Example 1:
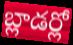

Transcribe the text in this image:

బ్లాడర్లో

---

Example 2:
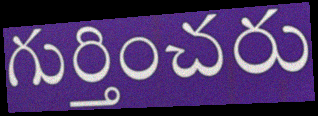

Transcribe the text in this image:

గుర్తించరు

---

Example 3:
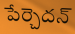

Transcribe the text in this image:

పేర్చెదన్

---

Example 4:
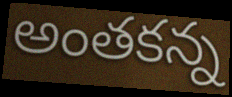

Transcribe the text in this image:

అంతకన్న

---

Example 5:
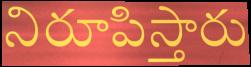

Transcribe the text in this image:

నిరూపిస్తారు